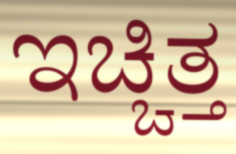
ಇಚ್ಚಿತ್ತ